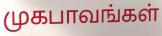
முகபாவங்கள்